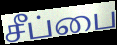
சீப்பை